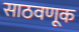
साठवणूक